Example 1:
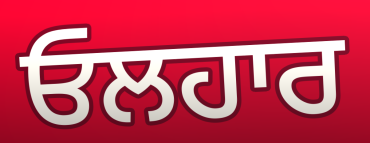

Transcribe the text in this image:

ਓਲਹਾਰ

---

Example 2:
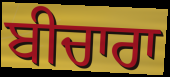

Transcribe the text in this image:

ਬੀਚਾਰਾ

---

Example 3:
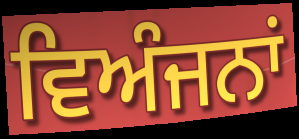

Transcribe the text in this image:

ਵਿਅੰਜਨਾਂ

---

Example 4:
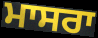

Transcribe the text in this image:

ਮਾਸਰਾ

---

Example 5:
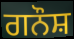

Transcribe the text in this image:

ਗਨੌਸ਼